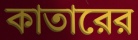
কাতারের